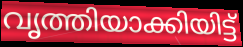
വൃത്തിയാക്കിയിട്ട്